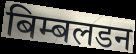
बिम्बलडन